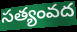
సత్యంవద